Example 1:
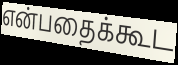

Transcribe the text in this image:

என்பதைக்கூட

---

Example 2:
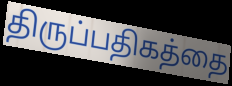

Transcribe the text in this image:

திருப்பதிகத்தை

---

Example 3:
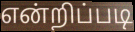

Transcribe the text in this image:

என்றிப்படி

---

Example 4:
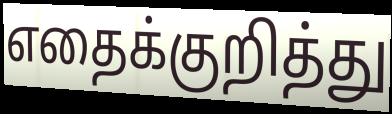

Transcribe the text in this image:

எதைக்குறித்து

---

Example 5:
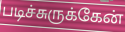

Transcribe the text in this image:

படிச்சுருக்கேன்